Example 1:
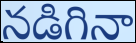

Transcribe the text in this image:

నడిగినా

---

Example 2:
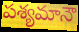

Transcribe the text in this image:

పశ్యమానౌ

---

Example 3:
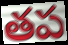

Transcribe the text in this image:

తప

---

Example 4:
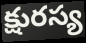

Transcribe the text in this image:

క్షురస్య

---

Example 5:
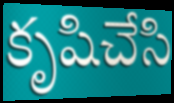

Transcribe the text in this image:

కృషిచేసి